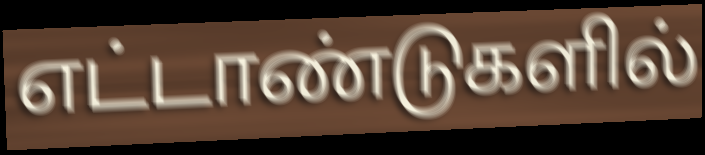
எட்டாண்டுகளில்